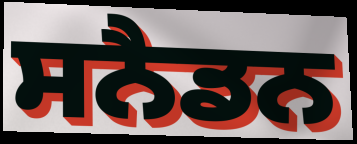
ਸਨੈਡਨ